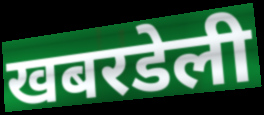
खबरडेली